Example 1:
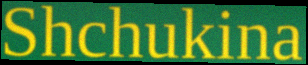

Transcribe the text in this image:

Shchukina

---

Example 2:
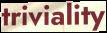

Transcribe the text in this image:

triviality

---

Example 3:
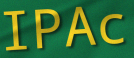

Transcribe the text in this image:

IPAc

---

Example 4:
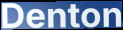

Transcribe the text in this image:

Denton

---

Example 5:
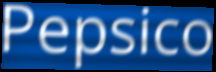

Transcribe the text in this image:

Pepsico